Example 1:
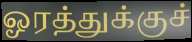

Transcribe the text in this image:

ஓரத்துக்குச்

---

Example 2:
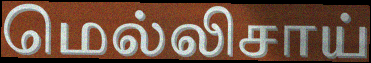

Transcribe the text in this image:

மெல்லிசாய்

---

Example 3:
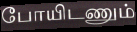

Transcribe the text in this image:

போயிடணும்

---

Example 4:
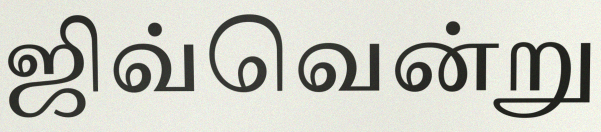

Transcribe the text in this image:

ஜிவ்வென்று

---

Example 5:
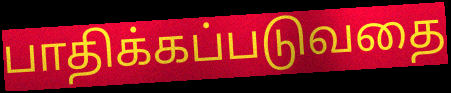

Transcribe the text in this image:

பாதிக்கப்படுவதை